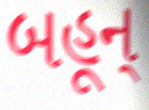
બહૂન્